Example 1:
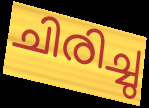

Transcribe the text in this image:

ചിരിച്ചു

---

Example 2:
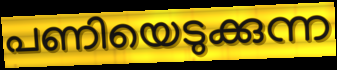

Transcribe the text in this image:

പണിയെടുക്കുന്ന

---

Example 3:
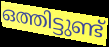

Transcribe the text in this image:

ഒത്തിട്ടുണ്ട്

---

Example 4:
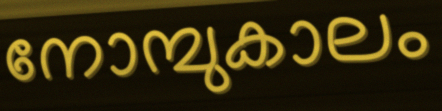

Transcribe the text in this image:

നോമ്പുകാലം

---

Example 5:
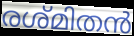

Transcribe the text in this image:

രശ്മിതൻ